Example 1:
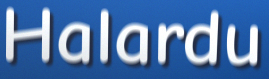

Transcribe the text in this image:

Halardu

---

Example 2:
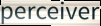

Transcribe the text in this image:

perceiver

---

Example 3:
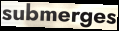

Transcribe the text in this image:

submerges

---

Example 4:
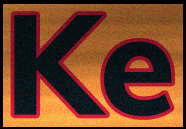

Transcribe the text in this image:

Ke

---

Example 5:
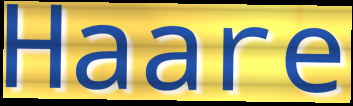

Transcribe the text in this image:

Haare